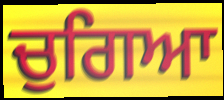
ਚੁਗਿਆ